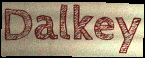
Dalkey